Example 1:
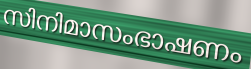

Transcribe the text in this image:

സിനിമാസംഭാഷണം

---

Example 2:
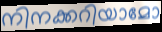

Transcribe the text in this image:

നിനക്കറിയാമോ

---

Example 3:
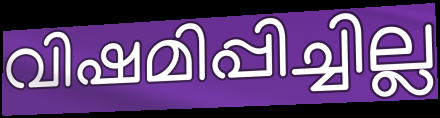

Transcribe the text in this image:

വിഷമിപ്പിച്ചില്ല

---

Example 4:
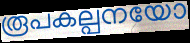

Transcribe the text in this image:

രൂപകല്പനയോ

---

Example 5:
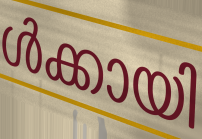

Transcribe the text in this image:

ൾക്കായി